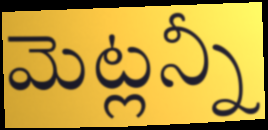
మెట్లన్నీ